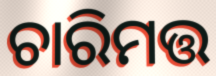
ଚାରିମତ୍ତ